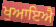
ਖੁਆਇਐ